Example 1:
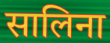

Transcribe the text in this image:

सालिना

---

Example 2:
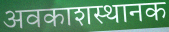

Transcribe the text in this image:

अवकाशस्थानक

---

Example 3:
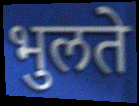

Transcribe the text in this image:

भुलते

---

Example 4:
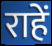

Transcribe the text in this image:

राहें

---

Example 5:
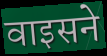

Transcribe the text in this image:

वाइसने